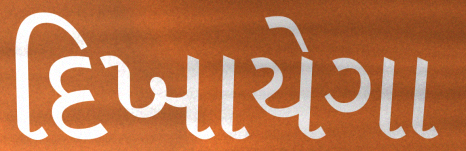
દિખાયેગા